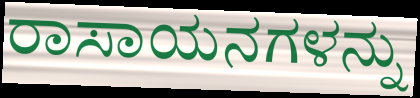
ರಾಸಾಯನಗಳನ್ನು